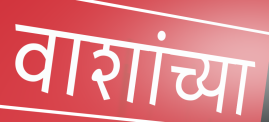
वाशांच्या